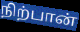
நிற்பான்